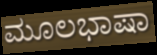
ಮೂಲಭಾಷಾ